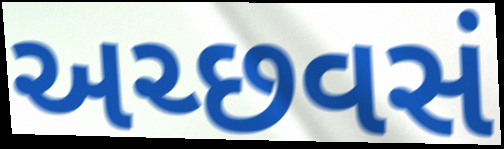
અચ્છવસં